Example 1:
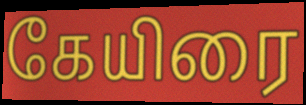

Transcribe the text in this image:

கேயிரை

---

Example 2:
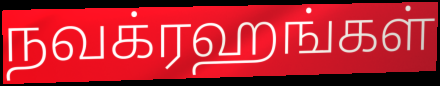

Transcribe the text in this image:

நவக்ரஹங்கள்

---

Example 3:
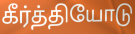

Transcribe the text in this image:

கீர்த்தியோடு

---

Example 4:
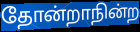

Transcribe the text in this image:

தோன்றாநின்ற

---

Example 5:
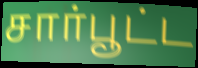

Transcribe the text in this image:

சார்பூட்ட